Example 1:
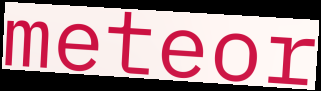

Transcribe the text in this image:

meteor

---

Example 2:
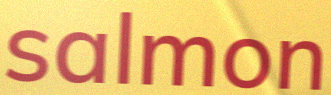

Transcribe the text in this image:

salmon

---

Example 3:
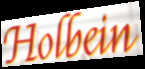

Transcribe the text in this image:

Holbein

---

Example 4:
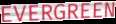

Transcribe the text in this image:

EVERGREEN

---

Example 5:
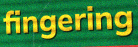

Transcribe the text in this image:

fingering